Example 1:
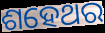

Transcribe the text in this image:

ଶହେଥର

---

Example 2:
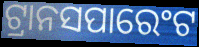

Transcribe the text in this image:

ଟ୍ରାନସପାରେଂଟ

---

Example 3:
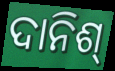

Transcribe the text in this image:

ଦାନିଶ୍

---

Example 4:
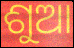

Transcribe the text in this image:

ଶୁଆ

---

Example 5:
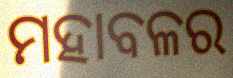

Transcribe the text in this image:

ମହାବଳର